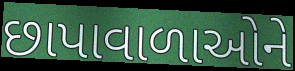
છાપાવાળાઓને